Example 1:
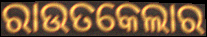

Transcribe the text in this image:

ରାଉତକେଲାର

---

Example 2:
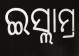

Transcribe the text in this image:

ଇସ୍ଲାମ୍ର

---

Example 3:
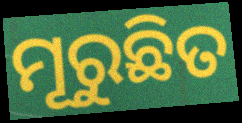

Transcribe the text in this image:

ମୂରୁଛିତ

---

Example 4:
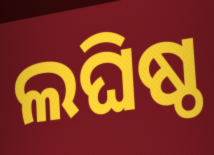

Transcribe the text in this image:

ଲଘିଷ୍ଠ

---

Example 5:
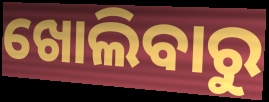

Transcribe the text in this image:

ଖୋଲିବାରୁ